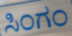
ಸಿಂಗಂ